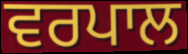
ਵਰਪਾਲ